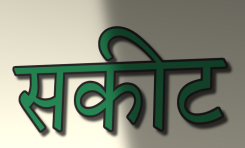
सकीट